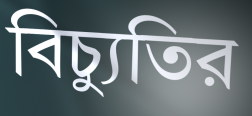
বিচ্যুতির